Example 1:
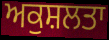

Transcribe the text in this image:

ਅਕੁਸ਼ਲਤਾ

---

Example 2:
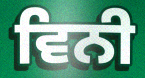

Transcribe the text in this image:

ਵਿਨੀ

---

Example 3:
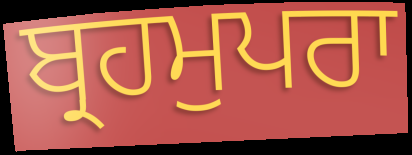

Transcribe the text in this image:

ਬ੍ਰਹਮੁਪਰਾ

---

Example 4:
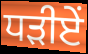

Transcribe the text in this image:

ਧੜੀਏਂ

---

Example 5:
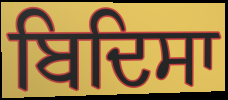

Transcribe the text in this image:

ਬਿਦਿਸਾ